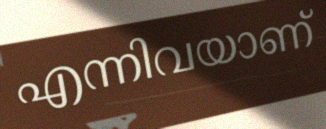
എന്നിവയാണ്